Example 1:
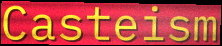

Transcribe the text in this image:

Casteism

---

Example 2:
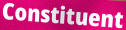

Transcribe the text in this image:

Constituent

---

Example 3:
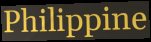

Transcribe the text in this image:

Philippine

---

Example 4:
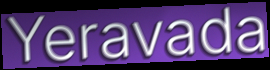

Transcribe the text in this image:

Yeravada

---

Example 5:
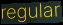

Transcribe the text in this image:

regular